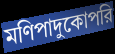
মণিপাদুকোপরি